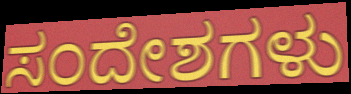
ಸಂದೇಶಗಳು